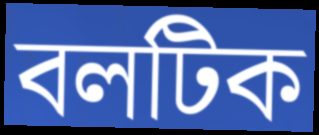
বলটিক